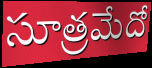
సూత్రమేదో